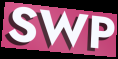
SWP